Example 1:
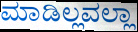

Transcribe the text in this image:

ಮಾಡಿಲ್ಲವಲ್ಲಾ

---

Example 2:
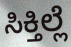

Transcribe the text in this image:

ಸಿಕ್ತಿಲ್ಲೆ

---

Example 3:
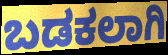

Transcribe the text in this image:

ಬಡಕಲಾಗಿ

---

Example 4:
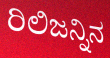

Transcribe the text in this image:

ರಿಲಿಜನ್ನಿನ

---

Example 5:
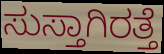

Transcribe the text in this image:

ಸುಸ್ತಾಗಿರತ್ತೆ